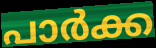
പാർക്ക